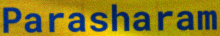
Parasharam